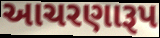
આચરણારૂપ